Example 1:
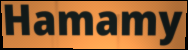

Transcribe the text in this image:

Hamamy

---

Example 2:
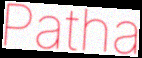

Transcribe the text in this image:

Patha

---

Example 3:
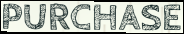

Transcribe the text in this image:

PURCHASE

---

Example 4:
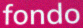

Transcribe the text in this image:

fondo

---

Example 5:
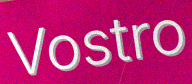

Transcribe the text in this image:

Vostro